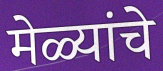
मेळ्यांचे